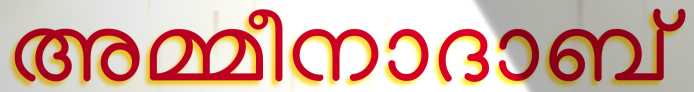
അമ്മീനാദാബ്